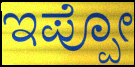
ಇಪ್ಪೋ